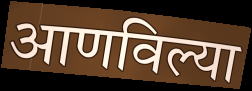
आणविल्या